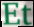
Et